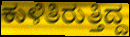
ಕುಳಿತಿರುತ್ತಿದ್ದ